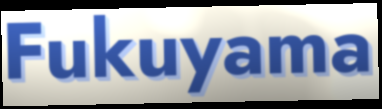
Fukuyama